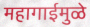
महागाईमुळे